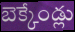
బెక్కేండ్లు